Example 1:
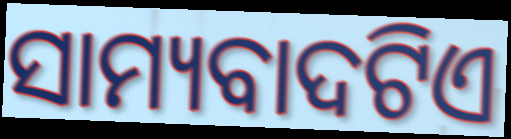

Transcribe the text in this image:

ସାମ୍ୟବାଦଟିଏ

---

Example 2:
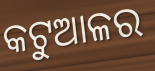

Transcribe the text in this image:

କଟୁଆଳର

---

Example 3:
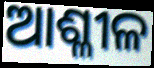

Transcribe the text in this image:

ଆଶ୍ଳୀଳ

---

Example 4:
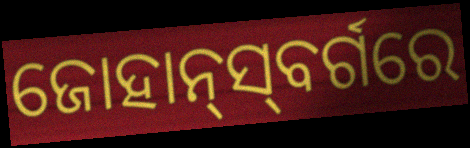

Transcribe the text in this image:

ଜୋହାନ୍‌ସ୍‌ବର୍ଗରେ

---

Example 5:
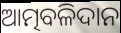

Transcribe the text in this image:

ଆତ୍ମବଳିଦାନ